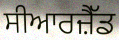
ਸੀਆਰਜ਼ੈੱਡ